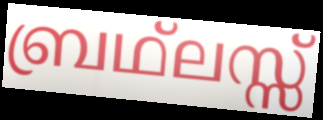
ബ്രഥ്ലസ്സ്